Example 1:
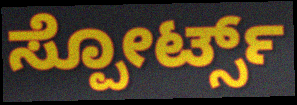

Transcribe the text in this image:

ಸ್ಪೋರ್ಟ್ಸ್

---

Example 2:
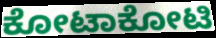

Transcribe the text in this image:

ಕೋಟಾಕೋಟಿ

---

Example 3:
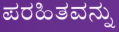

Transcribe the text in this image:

ಪರಹಿತವನ್ನು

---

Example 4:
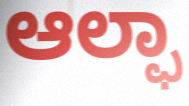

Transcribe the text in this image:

ಆಲ್ಫಾ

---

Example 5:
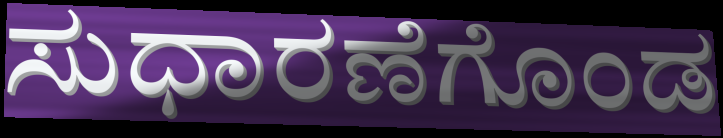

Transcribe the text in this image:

ಸುಧಾರಣೆಗೊಂಡ